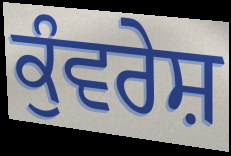
ਕੁੰਵਰੇਸ਼